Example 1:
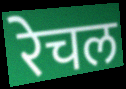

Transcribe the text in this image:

रेचल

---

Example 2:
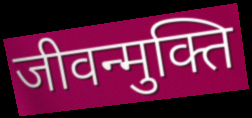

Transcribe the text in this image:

जीवन्मुक्ति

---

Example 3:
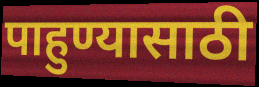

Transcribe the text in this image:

पाहुण्यासाठी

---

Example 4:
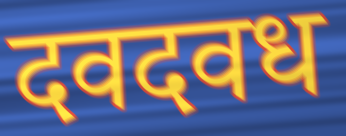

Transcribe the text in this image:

दवदवध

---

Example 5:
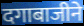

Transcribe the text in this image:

दगाबाजीने